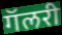
गॅलरी